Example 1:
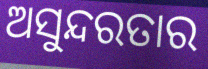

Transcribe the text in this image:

ଅସୁନ୍ଦରତାର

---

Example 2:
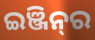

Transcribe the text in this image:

ଇଞ୍ଜିନ୍‌ର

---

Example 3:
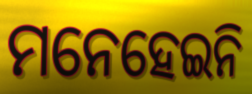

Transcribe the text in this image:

ମନେହେଇନି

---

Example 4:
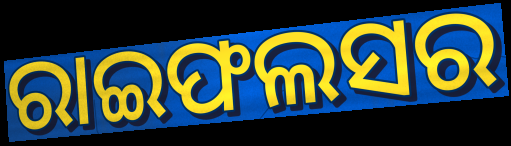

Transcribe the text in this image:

ରାଇଫଲସର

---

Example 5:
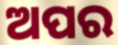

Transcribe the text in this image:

ଅପର